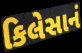
કિલેસાનં